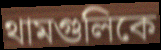
থামগুলিকে